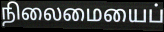
நிலைமையைப்